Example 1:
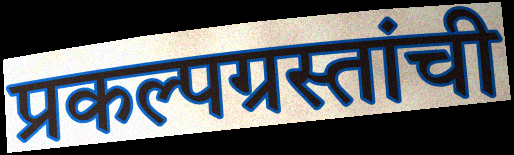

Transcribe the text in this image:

प्रकल्पग्रस्तांची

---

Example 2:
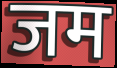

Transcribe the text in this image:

जम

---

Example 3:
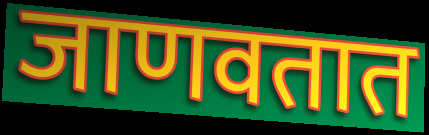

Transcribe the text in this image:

जाणवतात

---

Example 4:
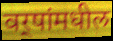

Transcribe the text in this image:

वर्षांमधील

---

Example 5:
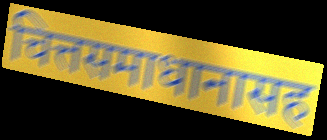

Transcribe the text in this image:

चित्तसमाधानासह